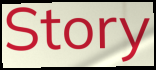
Story